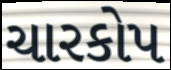
ચારકોપ